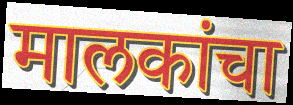
मालकांचा